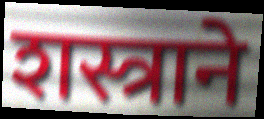
शस्त्राने